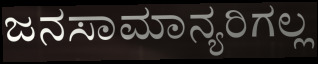
ಜನಸಾಮಾನ್ಯರಿಗಲ್ಲ